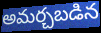
అమర్చబడిన